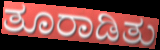
ತೂರಾಡಿತು